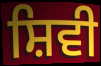
ਸ਼ਿਵੀ